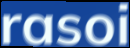
rasoi